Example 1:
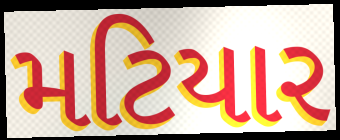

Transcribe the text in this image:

મટિયાર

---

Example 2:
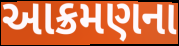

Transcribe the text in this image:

આક્રમણના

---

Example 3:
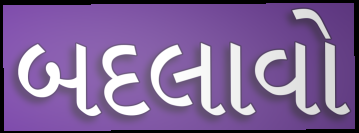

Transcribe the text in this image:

બદલાવો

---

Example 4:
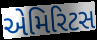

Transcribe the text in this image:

એમિરિટસ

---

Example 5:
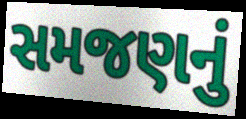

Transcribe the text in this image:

સમજણનું